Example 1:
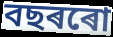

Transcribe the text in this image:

বছৰৰো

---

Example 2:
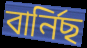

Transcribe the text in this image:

বাৰ্নিছ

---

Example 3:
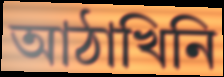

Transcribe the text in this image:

আঠাখিনি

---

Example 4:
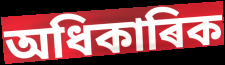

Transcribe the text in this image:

অধিকাৰিক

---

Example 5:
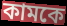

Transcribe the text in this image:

কামকে